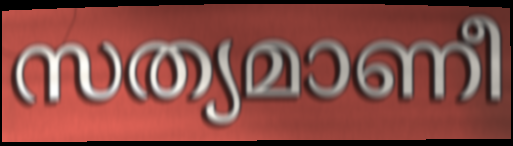
സത്യമാണീ